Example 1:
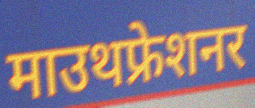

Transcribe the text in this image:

माउथफ्रेशनर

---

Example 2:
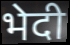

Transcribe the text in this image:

भेदी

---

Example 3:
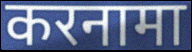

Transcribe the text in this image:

करनामा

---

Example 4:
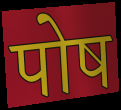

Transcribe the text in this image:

पोष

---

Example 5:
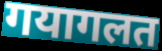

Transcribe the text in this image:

गयागलत